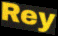
Rey